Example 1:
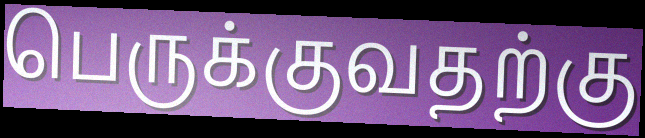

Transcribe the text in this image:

பெருக்குவதற்கு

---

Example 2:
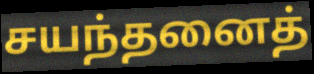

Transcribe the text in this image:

சயந்தனைத்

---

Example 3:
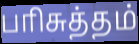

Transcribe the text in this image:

பரிசுத்தம்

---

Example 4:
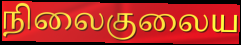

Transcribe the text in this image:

நிலைகுலைய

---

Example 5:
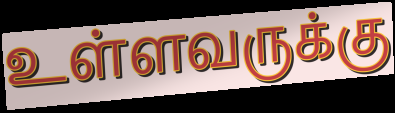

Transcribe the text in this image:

உள்ளவருக்கு